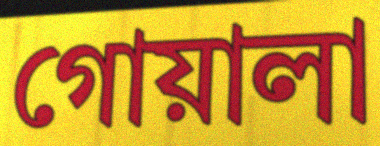
গোয়ালা